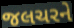
જલચરને